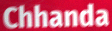
Chhanda